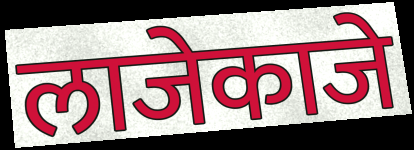
लाजेकाजे